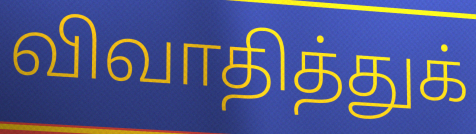
விவாதித்துக்